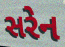
સરેન